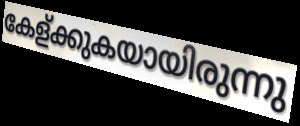
കേള്ക്കുകയായിരുന്നു